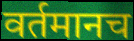
वर्तमानच